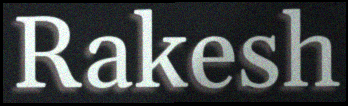
Rakesh